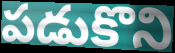
పడుకొని